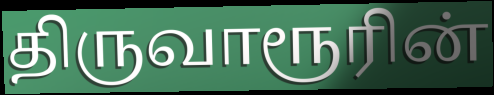
திருவாரூரின்